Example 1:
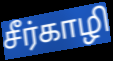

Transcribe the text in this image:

சீர்காழி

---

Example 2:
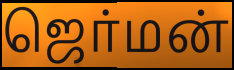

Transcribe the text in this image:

ஜெர்மன்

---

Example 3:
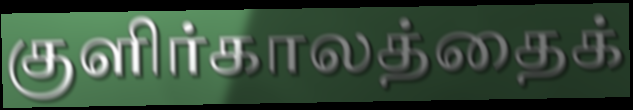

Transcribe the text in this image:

குளிர்காலத்தைக்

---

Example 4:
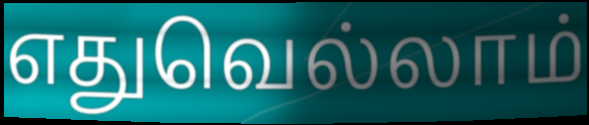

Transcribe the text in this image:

எதுவெல்லாம்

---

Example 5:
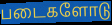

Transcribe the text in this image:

படைகளோடு